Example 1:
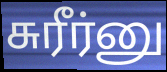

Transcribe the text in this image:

சுரீர்னு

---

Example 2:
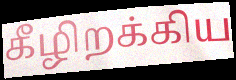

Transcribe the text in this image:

கீழிறக்கிய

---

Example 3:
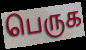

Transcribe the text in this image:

பெருக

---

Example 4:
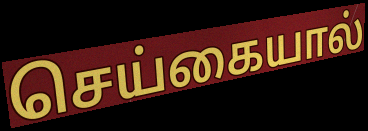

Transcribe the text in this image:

செய்கையால்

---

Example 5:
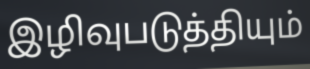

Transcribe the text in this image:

இழிவுபடுத்தியும்